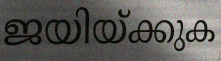
ജയിയ്ക്കുക